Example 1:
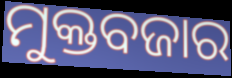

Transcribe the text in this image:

ମୁକ୍ତବଜାର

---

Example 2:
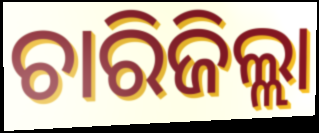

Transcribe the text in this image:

ଚାରିଜିଲ୍ଲା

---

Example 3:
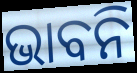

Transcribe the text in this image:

ଭାବନି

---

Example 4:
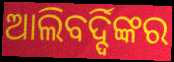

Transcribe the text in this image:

ଆଲିବର୍ଦ୍ଦିଙ୍କର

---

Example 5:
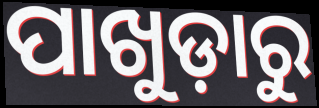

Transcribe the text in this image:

ପାଖୁଡ଼ାରୁ